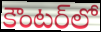
కౌంటర్‌లో